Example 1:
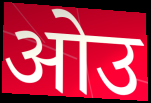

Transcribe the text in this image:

ओउ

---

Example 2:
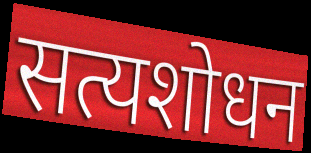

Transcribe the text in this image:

सत्यशोधन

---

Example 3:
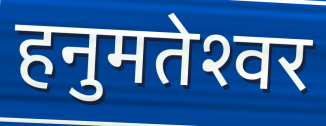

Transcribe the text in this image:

हनुमतेश्वर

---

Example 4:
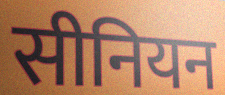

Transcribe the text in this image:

सीनियन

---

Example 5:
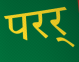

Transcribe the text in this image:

परर्